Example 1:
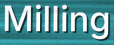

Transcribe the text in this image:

Milling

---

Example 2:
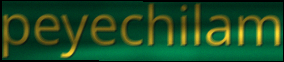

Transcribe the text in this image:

peyechilam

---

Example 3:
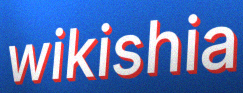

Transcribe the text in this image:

wikishia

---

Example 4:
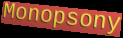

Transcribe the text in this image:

Monopsony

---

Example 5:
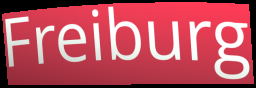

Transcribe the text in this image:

Freiburg